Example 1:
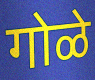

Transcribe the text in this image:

गोळे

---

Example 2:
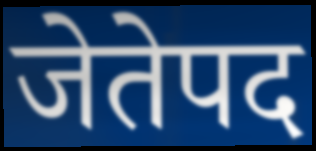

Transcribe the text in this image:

जेतेपद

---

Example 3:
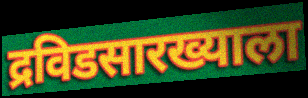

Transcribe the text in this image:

द्रविडसारख्याला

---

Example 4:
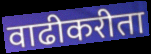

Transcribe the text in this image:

वाढीकरीता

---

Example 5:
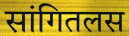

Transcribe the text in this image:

सांगितलस